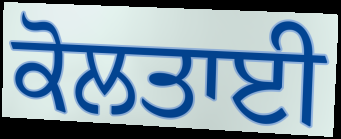
ਕੋਲਤਾਈ